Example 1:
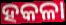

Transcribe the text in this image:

ହକଳା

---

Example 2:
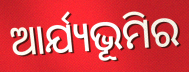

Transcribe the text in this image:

ଆର୍ଯ୍ୟଭୂମିର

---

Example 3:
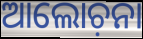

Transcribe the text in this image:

ଆଲୋଚ଼ନା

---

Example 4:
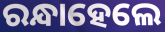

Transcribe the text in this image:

ରନ୍ଧାହେଲେ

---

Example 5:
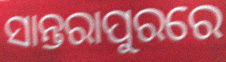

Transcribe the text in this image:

ସାନ୍ତରାପୁରରେ